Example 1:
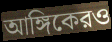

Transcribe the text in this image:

আঙ্গিকেরও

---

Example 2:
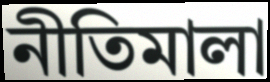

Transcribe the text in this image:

নীতিমালা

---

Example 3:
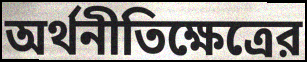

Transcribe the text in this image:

অর্থনীতিক্ষেত্রের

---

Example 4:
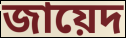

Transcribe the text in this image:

জায়েদ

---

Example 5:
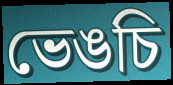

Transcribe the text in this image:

ভেঙচি